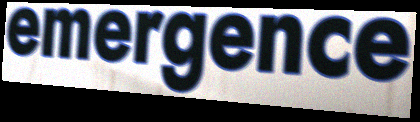
emergence